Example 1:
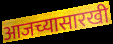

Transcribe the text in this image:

आजच्यासारखी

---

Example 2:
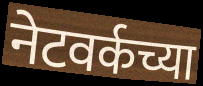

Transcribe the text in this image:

नेटवर्कच्या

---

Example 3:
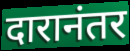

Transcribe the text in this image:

दारानंतर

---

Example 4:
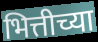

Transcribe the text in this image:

भित्तीच्या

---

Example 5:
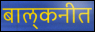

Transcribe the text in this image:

बाल्कनीत